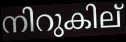
നിറുകില്